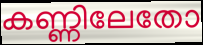
കണ്ണിലേതോ